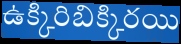
ఉక్కిరిబిక్కిరయి